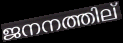
ജനനത്തില്